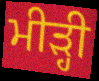
ਮੀੜ੍ਹੀ